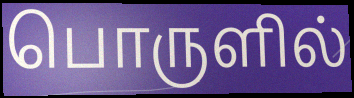
பொருளில்